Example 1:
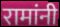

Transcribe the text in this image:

रामांनी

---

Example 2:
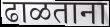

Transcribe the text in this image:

ढाळताना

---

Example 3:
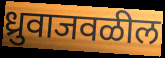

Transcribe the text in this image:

ध्रुवाजवळील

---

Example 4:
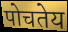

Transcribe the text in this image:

पोचतेय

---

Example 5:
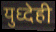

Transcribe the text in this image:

युध्देही